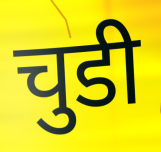
चुडी